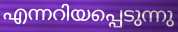
എന്നറിയപ്പെടുന്നു